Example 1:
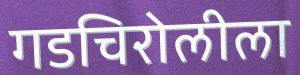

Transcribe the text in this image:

गडचिरोलीला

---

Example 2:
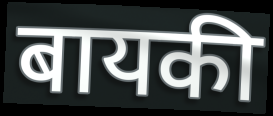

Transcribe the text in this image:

बायकी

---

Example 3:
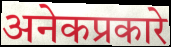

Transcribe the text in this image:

अनेकप्रकारे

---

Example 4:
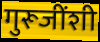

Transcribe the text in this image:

गुरूजींशी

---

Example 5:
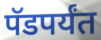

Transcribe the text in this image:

पॅडपर्यंत